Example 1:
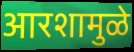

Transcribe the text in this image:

आरशामुळे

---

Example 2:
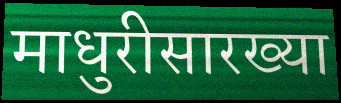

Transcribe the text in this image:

माधुरीसारख्या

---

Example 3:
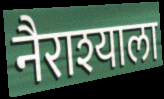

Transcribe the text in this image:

नैराश्याला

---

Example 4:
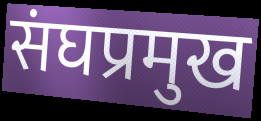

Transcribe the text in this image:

संघप्रमुख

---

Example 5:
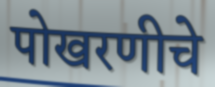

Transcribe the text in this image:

पोखरणीचे